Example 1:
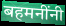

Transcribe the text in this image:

बहमनींनी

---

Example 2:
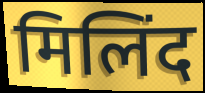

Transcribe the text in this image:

मिलिंद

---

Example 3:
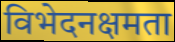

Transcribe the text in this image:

विभेदनक्षमता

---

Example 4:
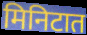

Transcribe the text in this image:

मिनिटात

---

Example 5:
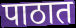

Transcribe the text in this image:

पाठात